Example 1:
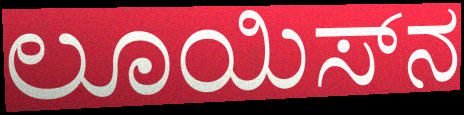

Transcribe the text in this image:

ಲೂಯಿಸ್‌ನ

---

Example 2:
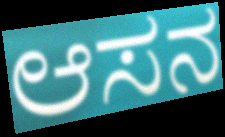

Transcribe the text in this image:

ಆಸನ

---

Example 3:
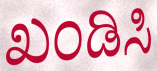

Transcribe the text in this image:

ಖಂಡಿಸಿ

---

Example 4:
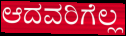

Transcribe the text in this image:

ಆದವರಿಗೆಲ್ಲ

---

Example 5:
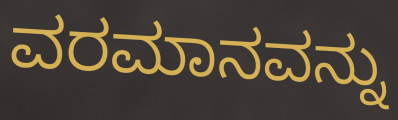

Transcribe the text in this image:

ವರಮಾನವನ್ನು